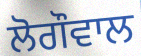
ਲੋਗੌਵਾਲ